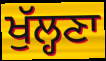
ਖੁੱਲ੍ਹਣਾ